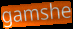
gamshe